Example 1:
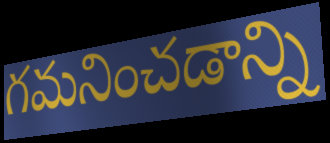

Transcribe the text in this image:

గమనించడాన్ని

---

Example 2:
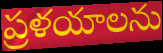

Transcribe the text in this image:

ప్రళయాలను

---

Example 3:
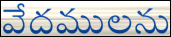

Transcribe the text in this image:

వేదములను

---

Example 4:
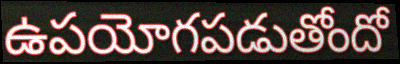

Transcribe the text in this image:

ఉపయోగపడుతోందో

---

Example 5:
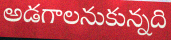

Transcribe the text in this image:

అడగాలనుకున్నది